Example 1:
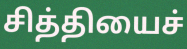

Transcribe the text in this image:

சித்தியைச்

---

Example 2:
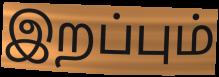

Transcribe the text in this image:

இறப்பும்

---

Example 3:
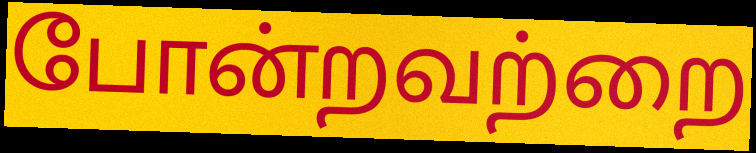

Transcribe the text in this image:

போன்றவற்றை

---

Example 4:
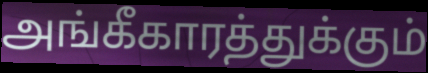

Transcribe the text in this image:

அங்கீகாரத்துக்கும்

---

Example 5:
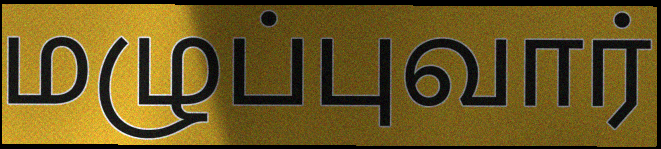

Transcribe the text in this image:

மழுப்புவார்